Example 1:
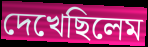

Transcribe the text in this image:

দেখেছিলেম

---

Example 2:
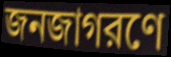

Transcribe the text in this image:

জনজাগরণে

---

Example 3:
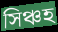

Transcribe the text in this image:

সিঞ্চহ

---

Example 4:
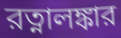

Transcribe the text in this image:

রত্নালঙ্কার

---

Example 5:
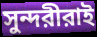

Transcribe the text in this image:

সুন্দরীরাই